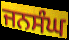
ਜਨਸੰਘ